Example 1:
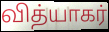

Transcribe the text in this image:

வித்யாகர்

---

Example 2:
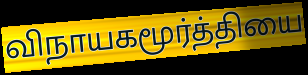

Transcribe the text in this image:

விநாயகமூர்த்தியை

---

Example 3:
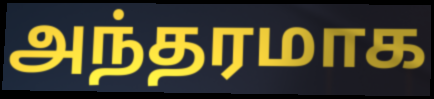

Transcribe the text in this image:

அந்தரமாக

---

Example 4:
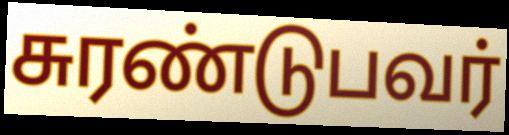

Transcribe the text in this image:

சுரண்டுபவர்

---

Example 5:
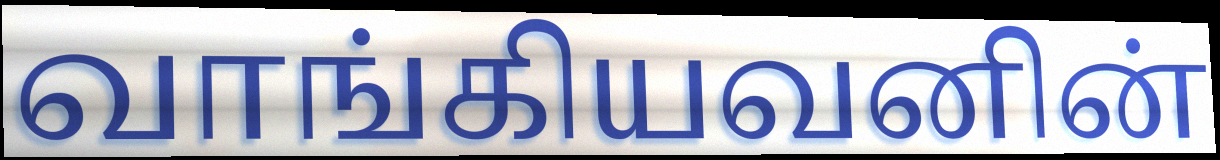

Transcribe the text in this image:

வாங்கியவனின்